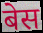
बेस